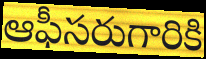
ఆఫీసరుగారికి